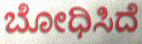
ಬೋಧಿಸಿದೆ